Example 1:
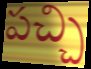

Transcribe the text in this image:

పచ్చి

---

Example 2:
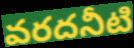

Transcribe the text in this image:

వరదనీటి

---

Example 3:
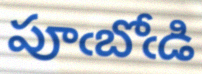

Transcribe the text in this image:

పూఁబోఁడి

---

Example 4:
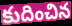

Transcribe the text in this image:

కుదించిన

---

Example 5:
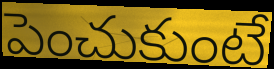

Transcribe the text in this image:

పెంచుకుంటే